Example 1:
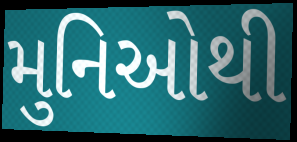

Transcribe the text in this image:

મુનિઓથી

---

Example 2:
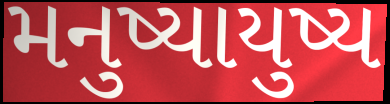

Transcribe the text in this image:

મનુષ્યાયુષ્ય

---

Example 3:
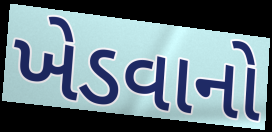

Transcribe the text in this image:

ખેડવાનો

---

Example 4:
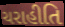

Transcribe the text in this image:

ચરાહીતિ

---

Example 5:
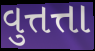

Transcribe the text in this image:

વુત્તત્તા